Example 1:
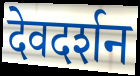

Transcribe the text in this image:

देवदर्शन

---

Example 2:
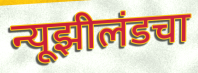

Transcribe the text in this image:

न्यूझीलंडचा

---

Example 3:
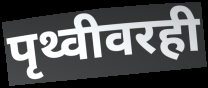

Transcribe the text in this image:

पृथ्वीवरही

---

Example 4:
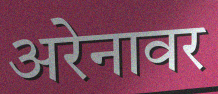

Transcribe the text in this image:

अरेनावर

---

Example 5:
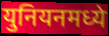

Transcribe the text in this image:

युनियनमध्ये